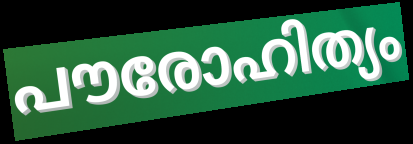
പൗരോഹിത്യം